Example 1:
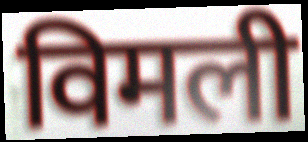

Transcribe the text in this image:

विमली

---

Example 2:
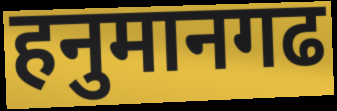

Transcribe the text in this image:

हनुमानगढ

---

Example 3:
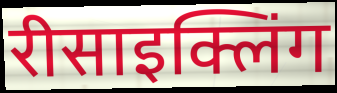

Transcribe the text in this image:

रीसाइक्लिंग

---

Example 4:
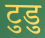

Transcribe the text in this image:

टुडु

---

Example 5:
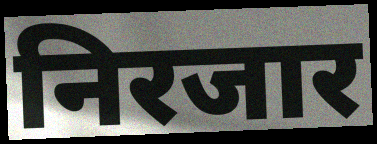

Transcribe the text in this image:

निरजार